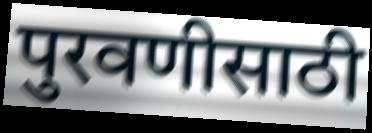
पुरवणीसाठी